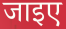
जाइए